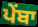
ਪੇਂਬਾ